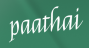
paathai